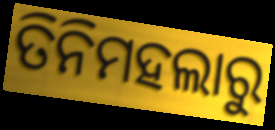
ତିନିମହଲାରୁ